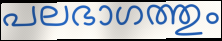
പലഭാഗത്തും